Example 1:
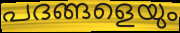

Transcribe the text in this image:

പദങ്ങളെയും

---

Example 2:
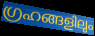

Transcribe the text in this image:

ഗ്രഹങ്ങളിലും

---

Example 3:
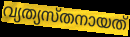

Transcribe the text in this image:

വ്യത്യസ്തനായത്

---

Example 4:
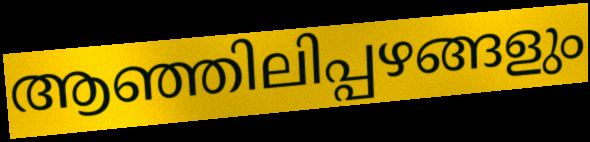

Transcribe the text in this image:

ആഞ്ഞിലിപ്പഴങ്ങളും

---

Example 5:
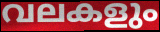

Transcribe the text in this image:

വലകളും